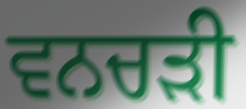
ਵਨਚੜੀ